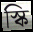
স্কি